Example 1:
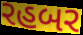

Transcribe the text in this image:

રહબર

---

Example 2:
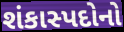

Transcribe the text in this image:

શંકાસ્પદોનો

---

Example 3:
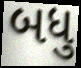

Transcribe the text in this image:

બધુ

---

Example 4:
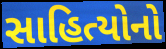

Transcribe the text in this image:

સાહિત્યોનો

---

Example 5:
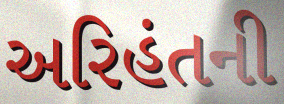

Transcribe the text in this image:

અરિહંતની